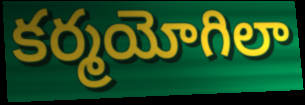
కర్మయోగిలా